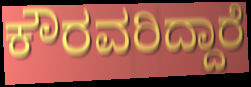
ಕೌರವರಿದ್ದಾರೆ